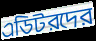
এডিটরদের